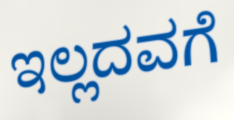
ಇಲ್ಲದವಗೆ